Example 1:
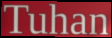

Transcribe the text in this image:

Tuhan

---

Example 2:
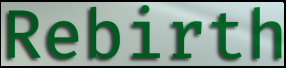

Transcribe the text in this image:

Rebirth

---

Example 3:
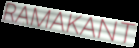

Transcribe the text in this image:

RAMAKANT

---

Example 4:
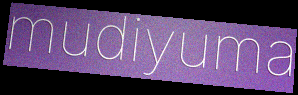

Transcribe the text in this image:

mudiyuma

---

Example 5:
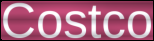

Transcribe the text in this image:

Costco